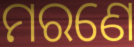
ମରଣେ